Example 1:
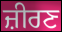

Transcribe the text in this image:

ਜ਼ੀਰਣ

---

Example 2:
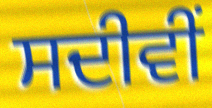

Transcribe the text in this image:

ਸਦੀਵੀਂ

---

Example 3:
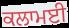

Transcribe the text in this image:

ਕਲਾਮਈ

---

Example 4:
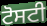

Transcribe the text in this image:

ਟੋਸਟੀ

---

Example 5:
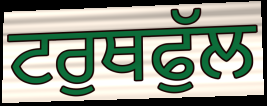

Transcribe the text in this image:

ਟਰੁਥਫੁੱਲ